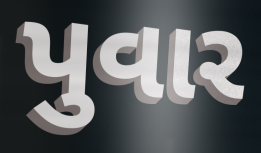
પુવાર